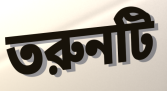
তরুনটি